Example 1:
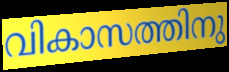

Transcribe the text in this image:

വികാസത്തിനു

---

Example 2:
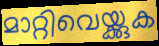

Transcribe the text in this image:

മാറ്റിവെയ്ക്കുക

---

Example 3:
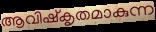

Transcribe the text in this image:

ആവിഷ്കൃതമാകുന്ന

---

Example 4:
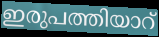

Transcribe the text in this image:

ഇരുപത്തിയാറ്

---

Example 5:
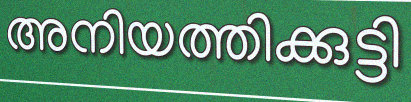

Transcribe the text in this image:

അനിയത്തിക്കുട്ടി